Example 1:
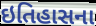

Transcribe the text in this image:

ઇતિહાસના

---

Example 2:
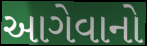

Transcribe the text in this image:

આગેવાનો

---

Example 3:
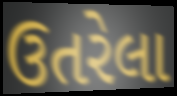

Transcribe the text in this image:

ઉતરેલા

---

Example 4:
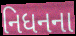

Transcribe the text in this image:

નિધનના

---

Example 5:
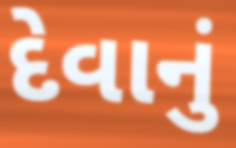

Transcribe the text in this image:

દેવાનું